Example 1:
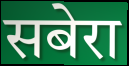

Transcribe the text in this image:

सबेरा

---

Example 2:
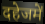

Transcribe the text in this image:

दहेजमें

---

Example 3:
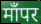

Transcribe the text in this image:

माँपर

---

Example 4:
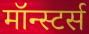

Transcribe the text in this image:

मॉन्स्टर्स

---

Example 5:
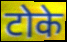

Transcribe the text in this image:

टोके